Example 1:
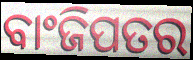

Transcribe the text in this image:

ବାଂଜିପତର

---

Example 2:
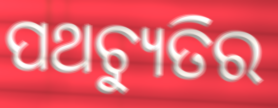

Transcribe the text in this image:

ପଥଚ୍ୟୁତିର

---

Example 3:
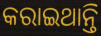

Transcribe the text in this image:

କରାଇଥାନ୍ତି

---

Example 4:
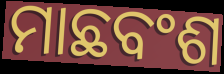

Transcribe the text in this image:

ମାଛବଂଶ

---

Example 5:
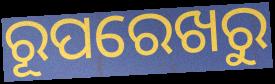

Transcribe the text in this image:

ରୂପରେଖରୁ